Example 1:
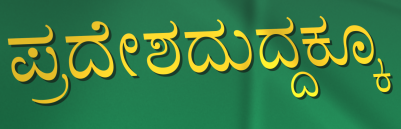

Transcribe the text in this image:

ಪ್ರದೇಶದುದ್ದಕ್ಕೂ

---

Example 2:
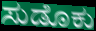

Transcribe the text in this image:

ಸುಡೊಕು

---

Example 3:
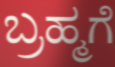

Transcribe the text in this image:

ಬ್ರಹ್ಮಗೆ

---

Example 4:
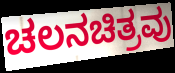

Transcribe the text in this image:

ಚಲನಚಿತ್ರವು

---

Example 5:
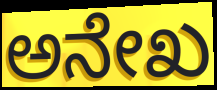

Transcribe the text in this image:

ಅನೇಖ